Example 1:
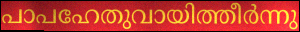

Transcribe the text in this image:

പാപഹേതുവായിത്തീർന്നു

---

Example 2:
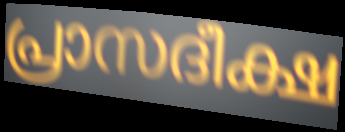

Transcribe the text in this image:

പ്രാസദീക്ഷ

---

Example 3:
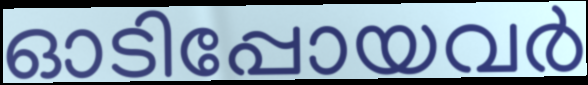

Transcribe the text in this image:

ഓടിപ്പോയവർ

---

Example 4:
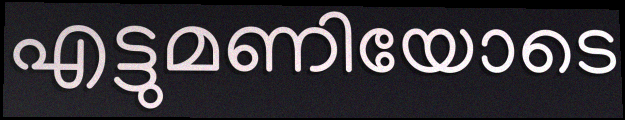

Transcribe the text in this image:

എട്ടുമണിയോടെ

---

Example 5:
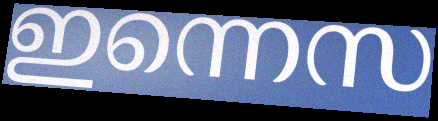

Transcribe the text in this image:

ഇന്നെസ